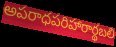
అపరాధపరిహారార్థబలి